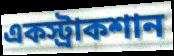
একস্ট্রাকশান